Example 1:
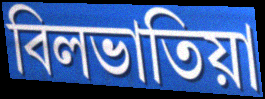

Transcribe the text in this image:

বিলভাতিয়া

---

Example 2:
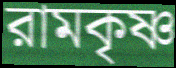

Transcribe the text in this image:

রামকৃষ্ণ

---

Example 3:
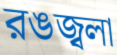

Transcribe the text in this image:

রঙজ্বলা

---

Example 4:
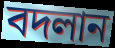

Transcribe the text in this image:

বদলান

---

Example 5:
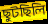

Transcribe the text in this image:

ছুটছিলি